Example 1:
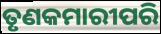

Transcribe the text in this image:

ତୃଣକମାରୀପରି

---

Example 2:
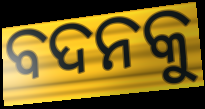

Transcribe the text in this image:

ବଦନକୁ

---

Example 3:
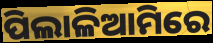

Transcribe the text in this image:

ପିଲାଳିଆମିରେ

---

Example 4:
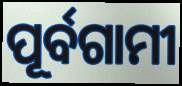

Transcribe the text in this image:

ପୂର୍ବଗାମୀ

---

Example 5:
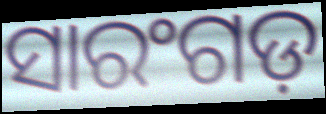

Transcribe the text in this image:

ସାରଂଗଡ଼